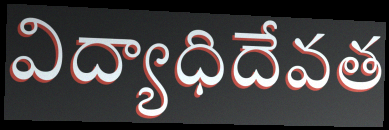
విద్యాధిదేవత